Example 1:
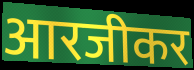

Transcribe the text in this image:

आरजीकर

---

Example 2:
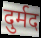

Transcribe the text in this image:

दुर्मद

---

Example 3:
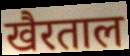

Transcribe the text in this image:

खैरताल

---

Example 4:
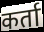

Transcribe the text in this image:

कर्ता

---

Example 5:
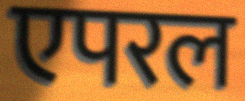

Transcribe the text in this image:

एपरल